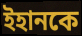
ইহানকে